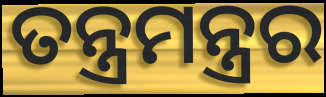
ତନ୍ତ୍ରମନ୍ତ୍ରର